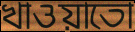
খাওয়াতো